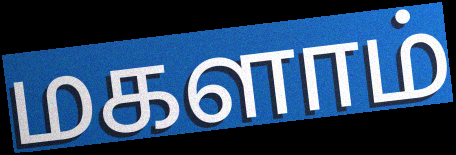
மகளாம்